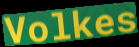
Volkes